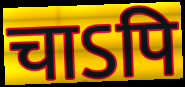
चाऽपि